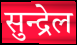
सुन्द्रेल